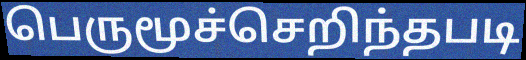
பெருமூச்செறிந்தபடி